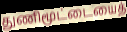
துணிமூட்டையைத்